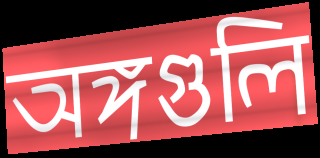
অঙ্গগুলি